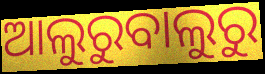
ଆଲୁରୁବାଲୁରୁ